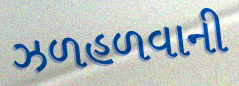
ઝળહળવાની